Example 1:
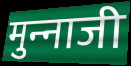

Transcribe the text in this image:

मुन्नाजी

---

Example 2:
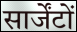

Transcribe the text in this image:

सार्जेंटों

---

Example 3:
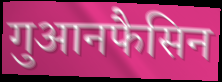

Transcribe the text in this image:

गुआनफैसिन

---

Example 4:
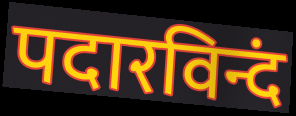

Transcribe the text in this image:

पदारविन्दं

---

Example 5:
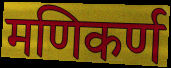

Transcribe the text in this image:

मणिकर्ण